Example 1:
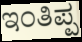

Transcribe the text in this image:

ಇಂತಿಪ್ಪ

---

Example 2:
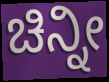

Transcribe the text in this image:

ಚಿನ್ನೀ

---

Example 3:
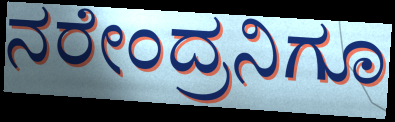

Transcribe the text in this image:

ನರೇಂದ್ರನಿಗೂ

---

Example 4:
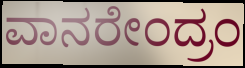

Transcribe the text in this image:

ವಾನರೇಂದ್ರಂ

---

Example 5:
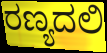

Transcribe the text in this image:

ರಣ್ಯದಲಿ